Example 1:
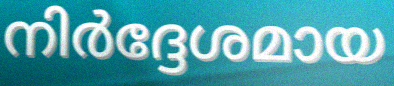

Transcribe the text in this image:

നിർദ്ദേശമായ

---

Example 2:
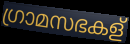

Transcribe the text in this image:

ഗ്രാമസഭകള്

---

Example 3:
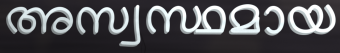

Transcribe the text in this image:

അസ്വസ്ഥമായ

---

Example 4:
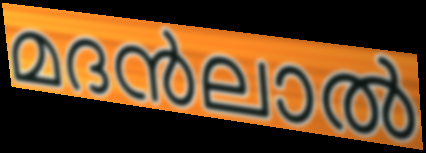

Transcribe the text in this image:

മദൻലാൽ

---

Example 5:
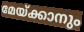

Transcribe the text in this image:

മേയ്ക്കാനും